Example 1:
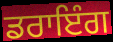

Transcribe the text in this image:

ਡਰਾਇੰਗ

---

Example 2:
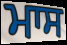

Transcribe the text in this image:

ਮਾਸ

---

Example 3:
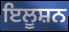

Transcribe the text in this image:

ਇਲੂਸ਼ਨ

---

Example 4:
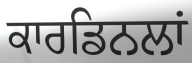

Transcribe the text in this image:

ਕਾਰਡਿਨਲਾਂ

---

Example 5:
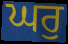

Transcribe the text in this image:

ਘਰੁ